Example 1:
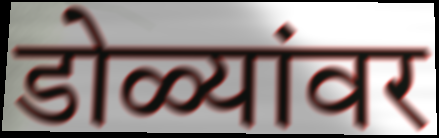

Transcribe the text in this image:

डोळ्यांवर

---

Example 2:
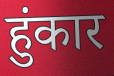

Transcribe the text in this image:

हुंकार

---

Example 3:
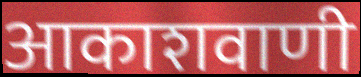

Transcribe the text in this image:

आकाशवाणी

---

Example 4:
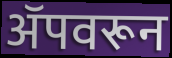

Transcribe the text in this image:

ॲपवरून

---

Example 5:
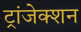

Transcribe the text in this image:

ट्रांजेक्शन